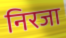
निरजा